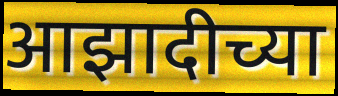
आझादीच्या